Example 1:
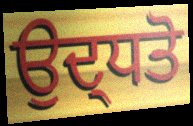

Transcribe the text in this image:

ਉਦ੍ਧਤੋ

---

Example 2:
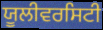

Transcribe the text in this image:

ਯੂਲੀਵਰਸਿਟੀ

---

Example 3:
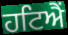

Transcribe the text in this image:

ਹਟਿਐਂ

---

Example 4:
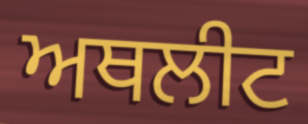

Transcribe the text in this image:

ਅਥਲੀਟ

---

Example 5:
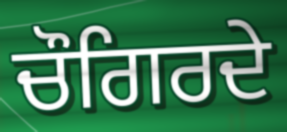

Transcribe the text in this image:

ਚੌਗਿਰਦੇ